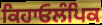
ਕਿਹਾਓਲੰਪਿਕ